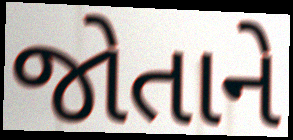
જોતાને